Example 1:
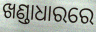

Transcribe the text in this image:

ଖଣ୍ଡାଧାରରେ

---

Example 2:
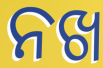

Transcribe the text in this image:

ନଖ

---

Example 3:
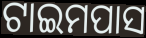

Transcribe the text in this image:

ଟାଇମପାସ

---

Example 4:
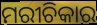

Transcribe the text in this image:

ମରୀଚିକାର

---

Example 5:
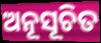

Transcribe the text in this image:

ଅନୂସୂଚିତ